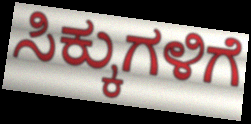
ಸಿಕ್ಕುಗಳಿಗೆ